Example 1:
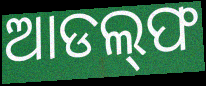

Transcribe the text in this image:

ଆଡଲ୍‌ଫ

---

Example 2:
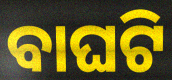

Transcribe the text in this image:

ବାଘଟି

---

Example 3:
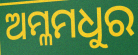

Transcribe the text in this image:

ଅମ୍ଳମଧୁର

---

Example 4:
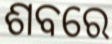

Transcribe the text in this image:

ଶବରେ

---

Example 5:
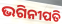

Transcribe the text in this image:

ଭଗିନୀପତି